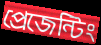
প্রেজেন্টিং